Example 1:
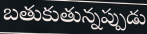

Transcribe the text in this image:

బతుకుతున్నప్పుడు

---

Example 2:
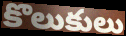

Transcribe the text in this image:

కొలుకులు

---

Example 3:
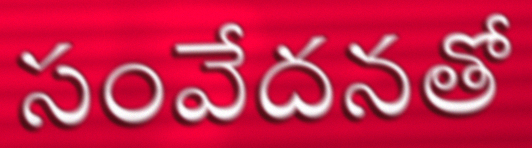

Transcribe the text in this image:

సంవేదనతో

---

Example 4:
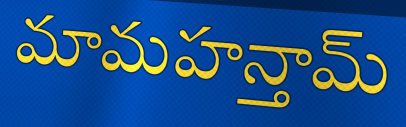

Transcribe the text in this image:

మామహన్తామ్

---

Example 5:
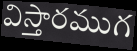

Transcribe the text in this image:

విస్తారముగ